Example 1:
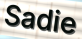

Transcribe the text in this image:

Sadie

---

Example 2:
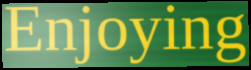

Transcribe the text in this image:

Enjoying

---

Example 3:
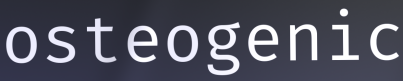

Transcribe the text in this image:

osteogenic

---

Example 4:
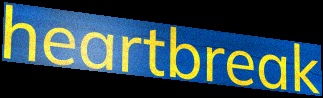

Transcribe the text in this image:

heartbreak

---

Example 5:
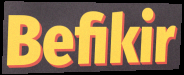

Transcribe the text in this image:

Befikir